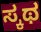
ಸ್ಕಥ